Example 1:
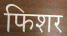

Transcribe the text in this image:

फिशर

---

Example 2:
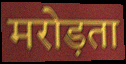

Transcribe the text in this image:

मरोड़ता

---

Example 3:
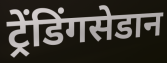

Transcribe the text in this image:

ट्रेंडिंगसेडान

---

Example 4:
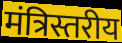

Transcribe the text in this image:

मंत्रिस्तरीय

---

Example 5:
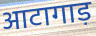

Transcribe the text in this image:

आटागाड़